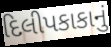
દિલીપકાકાનું